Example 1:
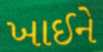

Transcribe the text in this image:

ખાઈને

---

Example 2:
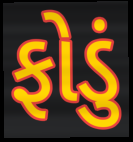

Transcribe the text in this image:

ફોડું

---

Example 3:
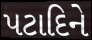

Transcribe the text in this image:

પટાદિને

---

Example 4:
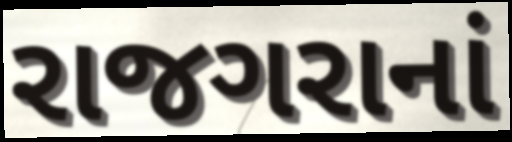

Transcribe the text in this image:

રાજગરાનાં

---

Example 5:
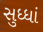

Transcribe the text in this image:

સુધ્ધાં